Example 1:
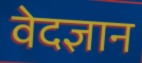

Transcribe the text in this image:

वेदज्ञान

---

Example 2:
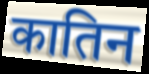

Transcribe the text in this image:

कातिन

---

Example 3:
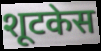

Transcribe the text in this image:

शूटकेस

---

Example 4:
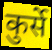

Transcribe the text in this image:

कुर्से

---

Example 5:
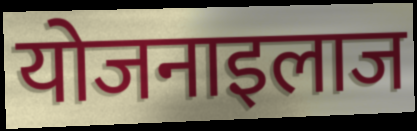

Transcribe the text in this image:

योजनाइलाज